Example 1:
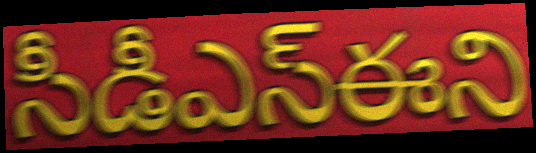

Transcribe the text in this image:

సీడీఎస్ఈని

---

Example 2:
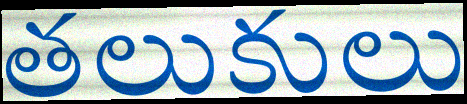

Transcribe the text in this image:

తలుకులు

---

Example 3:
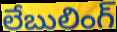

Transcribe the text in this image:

లేబులింగ్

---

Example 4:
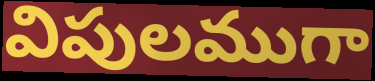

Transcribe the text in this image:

విపులముగా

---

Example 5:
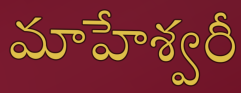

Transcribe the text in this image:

మాహేశ్వరీ